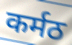
कर्मठ